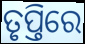
ତୃପ୍ତିରେ